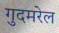
गुदमरेल